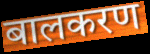
बालकरण